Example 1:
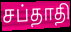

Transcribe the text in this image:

சப்தாதி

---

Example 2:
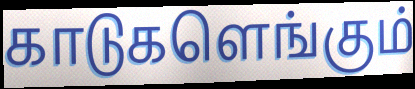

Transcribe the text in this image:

காடுகளெங்கும்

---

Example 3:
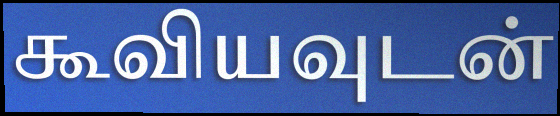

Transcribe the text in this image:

கூவியவுடன்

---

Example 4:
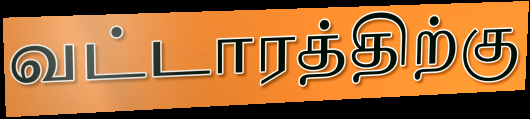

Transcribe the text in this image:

வட்டாரத்திற்கு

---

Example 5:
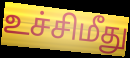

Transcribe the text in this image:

உச்சிமீது